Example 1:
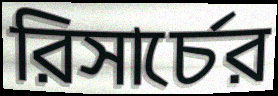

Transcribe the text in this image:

রিসার্চের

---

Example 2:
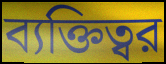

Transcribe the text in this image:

ব্যক্তিত্বর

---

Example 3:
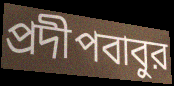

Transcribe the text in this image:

প্রদীপবাবুর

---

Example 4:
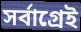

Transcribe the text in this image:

সর্বাগ্রেই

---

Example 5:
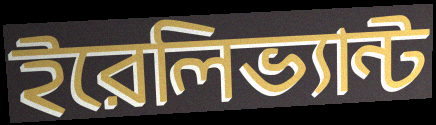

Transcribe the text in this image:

ইরেলিভ্যান্ট